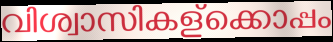
വിശ്വാസികള്ക്കൊപ്പം